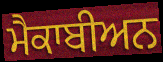
ਮੈਕਾਬੀਅਨ